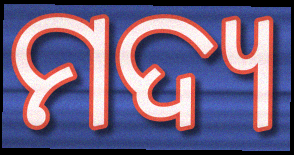
ମଦ୍ୟ